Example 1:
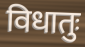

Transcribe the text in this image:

विधातुः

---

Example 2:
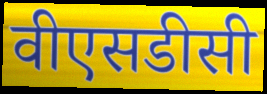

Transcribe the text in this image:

वीएसडीसी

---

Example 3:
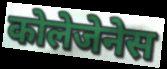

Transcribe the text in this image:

कोलेजेनेस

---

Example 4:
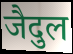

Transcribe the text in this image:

जैदुल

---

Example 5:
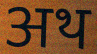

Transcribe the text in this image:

अथ